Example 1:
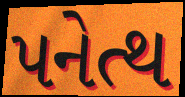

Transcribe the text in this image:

પનેત્થ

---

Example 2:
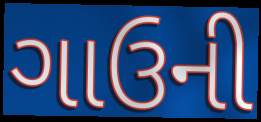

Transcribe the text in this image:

ગાઉની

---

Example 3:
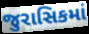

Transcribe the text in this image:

જુરાસિકમાં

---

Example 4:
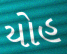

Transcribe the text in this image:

યોહ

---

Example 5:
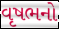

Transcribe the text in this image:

વૃષભનો